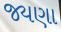
જ્યણા